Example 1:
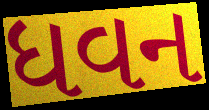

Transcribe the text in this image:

ધવન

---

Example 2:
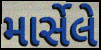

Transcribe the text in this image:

માર્સેલે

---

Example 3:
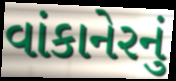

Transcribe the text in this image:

વાંકાનેરનું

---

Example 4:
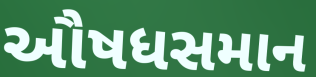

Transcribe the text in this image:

ઔષધસમાન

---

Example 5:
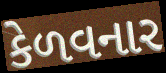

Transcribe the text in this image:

કેળવનાર